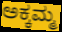
ಅಕ್ಕಮ್ಮ